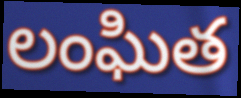
లంఘిత